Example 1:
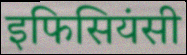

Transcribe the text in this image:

इफिसियंसी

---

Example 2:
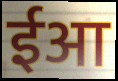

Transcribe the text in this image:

ईआ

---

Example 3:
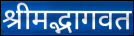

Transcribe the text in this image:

श्रीमद्भागवत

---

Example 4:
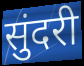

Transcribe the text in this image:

सुंदरी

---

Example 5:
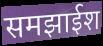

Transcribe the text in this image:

समझाईश